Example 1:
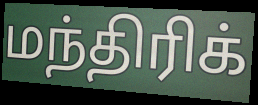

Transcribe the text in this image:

மந்திரிக்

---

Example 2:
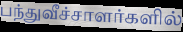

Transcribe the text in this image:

பந்துவீச்சாளர்களில்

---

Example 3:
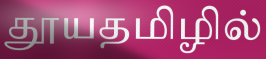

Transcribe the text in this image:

தூயதமிழில்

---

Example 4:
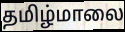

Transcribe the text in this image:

தமிழ்மாலை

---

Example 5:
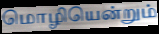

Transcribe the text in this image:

மொழியென்றும்